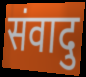
संवादु